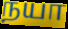
நயா